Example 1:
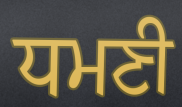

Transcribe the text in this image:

ਧਮਣੀ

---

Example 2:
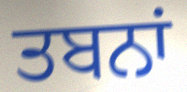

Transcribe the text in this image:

ਤਬਨਾਂ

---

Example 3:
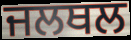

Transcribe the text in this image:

ਜਲਥਲ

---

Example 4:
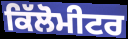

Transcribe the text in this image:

ਕਿੱਲੋਮੀਟਰ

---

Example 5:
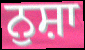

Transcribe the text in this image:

ਨੁਸ਼ਾ